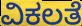
ವಿಕಲತೆ